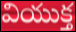
వియుక్త